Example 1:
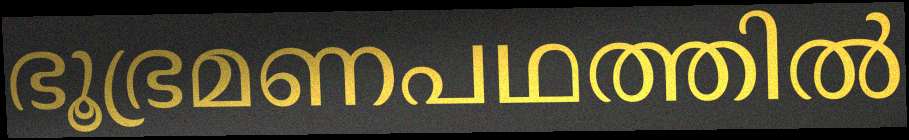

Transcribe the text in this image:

ഭൂഭ്രമണപഥത്തിൽ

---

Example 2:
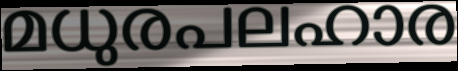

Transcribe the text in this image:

മധുരപലഹാര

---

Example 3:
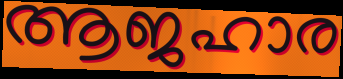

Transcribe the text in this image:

ആജഹാര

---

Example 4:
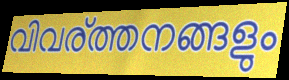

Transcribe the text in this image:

വിവര്ത്തനങ്ങളും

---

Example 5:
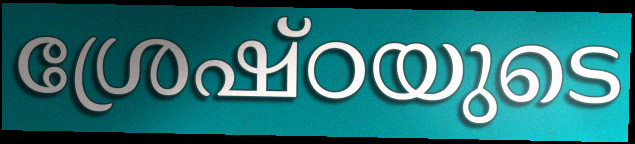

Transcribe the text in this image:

ശ്രേഷ്ഠയുടെ